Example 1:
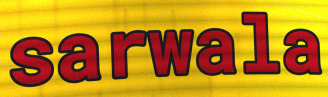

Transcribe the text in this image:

sarwala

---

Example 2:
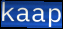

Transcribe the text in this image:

kaap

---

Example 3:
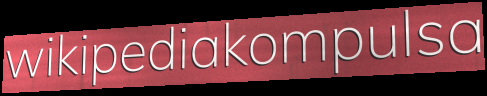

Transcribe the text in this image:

wikipediakompulsa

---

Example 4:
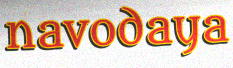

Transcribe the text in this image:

navodaya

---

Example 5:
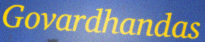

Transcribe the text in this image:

Govardhandas